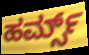
ಹರ್ಮ್ಸ್